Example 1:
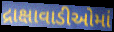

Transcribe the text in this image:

દ્રાક્ષાવાડીઓમાં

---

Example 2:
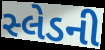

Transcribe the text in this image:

સ્લેડની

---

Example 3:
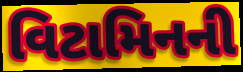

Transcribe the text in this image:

વિટામિનની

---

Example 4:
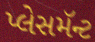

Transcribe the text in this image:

પ્લેસમૅન્ટ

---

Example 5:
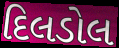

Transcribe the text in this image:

દિલડોલ